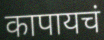
कापायचं